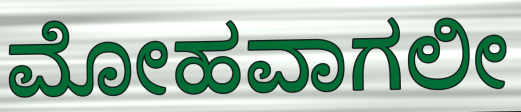
ಮೋಹವಾಗಲೀ